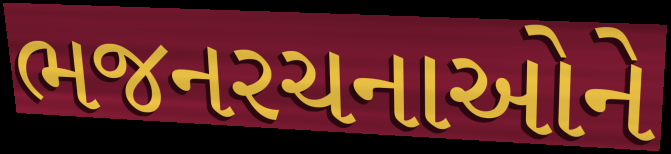
ભજનરચનાઓને